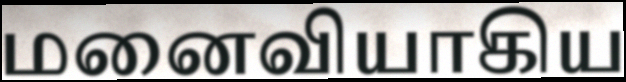
மனைவியாகிய